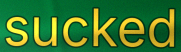
sucked